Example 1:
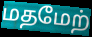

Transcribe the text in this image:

மதமேற்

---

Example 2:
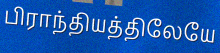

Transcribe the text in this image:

பிராந்தியத்திலேயே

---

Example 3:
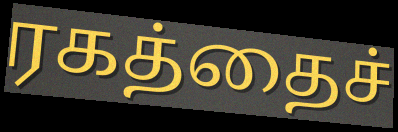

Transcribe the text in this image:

ரகத்தைச்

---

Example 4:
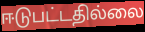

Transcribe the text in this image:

ஈடுபட்டதில்லை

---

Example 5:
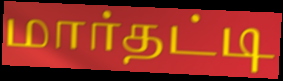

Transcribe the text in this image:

மார்தட்டி